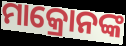
ମାକ୍ରୋନଙ୍କ